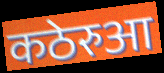
कठेरुआ